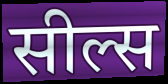
सील्स